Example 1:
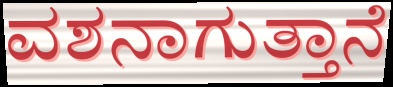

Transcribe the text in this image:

ವಶನಾಗುತ್ತಾನೆ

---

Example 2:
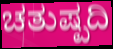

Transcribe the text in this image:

ಚತುಷ್ಪದಿ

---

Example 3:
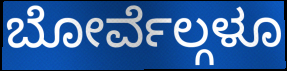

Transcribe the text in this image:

ಬೋರ್ವೆಲ್ಗಳೂ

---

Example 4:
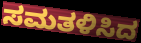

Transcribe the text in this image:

ಸಮತಳಿಸಿದ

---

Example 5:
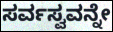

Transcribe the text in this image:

ಸರ್ವಸ್ವವನ್ನೇ